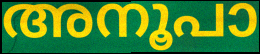
അനൂപാ